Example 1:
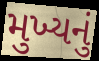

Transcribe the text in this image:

મુખ્યનું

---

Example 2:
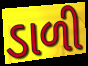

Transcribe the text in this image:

ડાળી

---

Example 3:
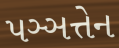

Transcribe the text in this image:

પઞ્ઞત્તેન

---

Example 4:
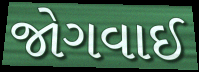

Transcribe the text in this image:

જોગવાઈ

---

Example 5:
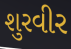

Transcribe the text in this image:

શુરવીર